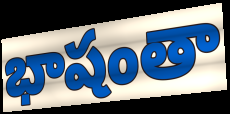
భాషంతా